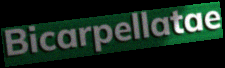
Bicarpellatae